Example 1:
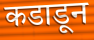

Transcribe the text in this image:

कडाडून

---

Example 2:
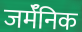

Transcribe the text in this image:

जर्मॅनिक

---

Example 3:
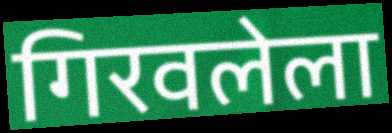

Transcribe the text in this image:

गिरवलेला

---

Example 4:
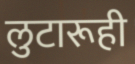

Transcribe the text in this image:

लुटारूही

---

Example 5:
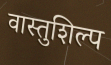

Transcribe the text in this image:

वास्तुशिल्प